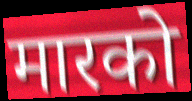
मारको